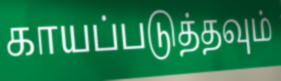
காயப்படுத்தவும்